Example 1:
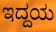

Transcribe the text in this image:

ಇದ್ದಯ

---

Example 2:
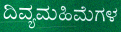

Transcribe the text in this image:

ದಿವ್ಯಮಹಿಮೆಗಳ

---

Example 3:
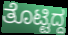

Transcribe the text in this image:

ತೊಟ್ಟಿದ್ದ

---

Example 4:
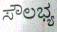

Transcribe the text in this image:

ಸೌಲಭ್ಯ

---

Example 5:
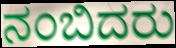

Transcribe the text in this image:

ನಂಬಿದರು